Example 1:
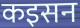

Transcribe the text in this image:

कइसन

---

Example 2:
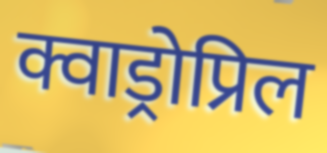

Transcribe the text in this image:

क्वाड्रोप्रिल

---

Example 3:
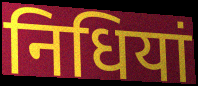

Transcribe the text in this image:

निधियां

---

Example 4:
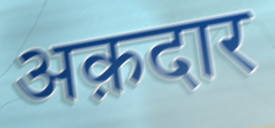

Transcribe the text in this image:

अक़दार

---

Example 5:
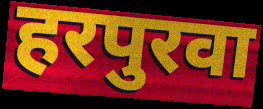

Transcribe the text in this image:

हरपुरवा